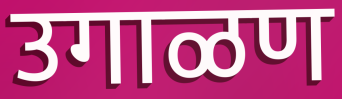
उगाळण